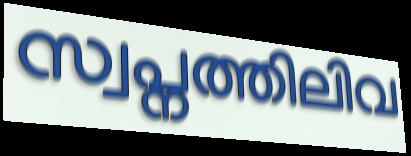
സ്വപ്നത്തിലിവ